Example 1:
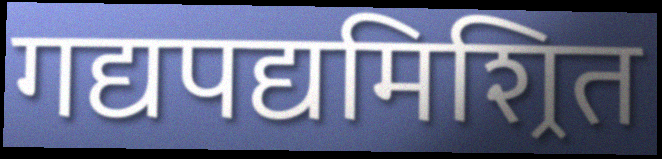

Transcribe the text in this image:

गद्यपद्यमिश्रित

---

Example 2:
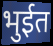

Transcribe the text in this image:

भुईत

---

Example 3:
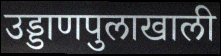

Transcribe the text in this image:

उड्डाणपुलाखाली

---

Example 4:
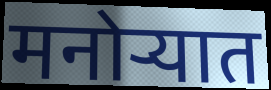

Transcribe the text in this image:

मनोऱ्यात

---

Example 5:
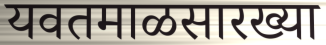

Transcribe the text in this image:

यवतमाळसारख्या